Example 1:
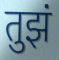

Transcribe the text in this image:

तुझं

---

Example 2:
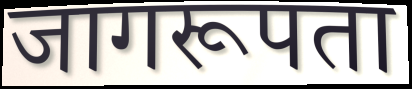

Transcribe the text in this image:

जागरूपता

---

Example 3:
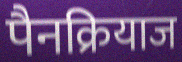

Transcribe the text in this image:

पैनक्रियाज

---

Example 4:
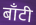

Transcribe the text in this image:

बाँटी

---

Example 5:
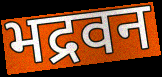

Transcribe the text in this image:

भद्रवन